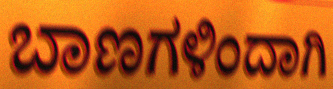
ಬಾಣಗಳಿಂದಾಗಿ